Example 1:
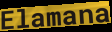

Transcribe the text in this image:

Elamana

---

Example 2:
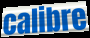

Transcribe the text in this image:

calibre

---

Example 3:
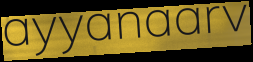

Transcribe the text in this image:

ayyanaarv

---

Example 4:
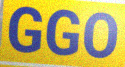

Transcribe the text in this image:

GGO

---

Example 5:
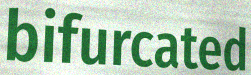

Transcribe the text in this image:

bifurcated